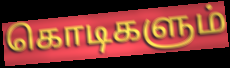
கொடிகளும்